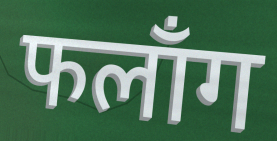
फलाँग